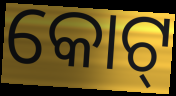
କୋଟ୍